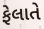
ફેલાતે